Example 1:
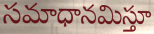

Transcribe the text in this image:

సమాధానమిస్తూ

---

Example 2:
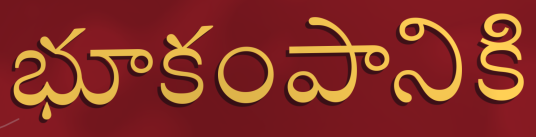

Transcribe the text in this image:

భూకంపానికి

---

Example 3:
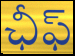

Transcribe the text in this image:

ఛీఫ్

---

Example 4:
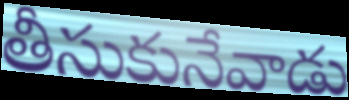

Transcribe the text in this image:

తీసుకునేవాడు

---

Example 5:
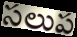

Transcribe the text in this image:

సలుప